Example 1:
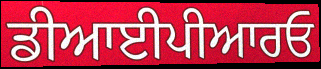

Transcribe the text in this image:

ਡੀਆਈਪੀਆਰਓ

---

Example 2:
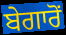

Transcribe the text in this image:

ਬੇਗਾਰੋਂ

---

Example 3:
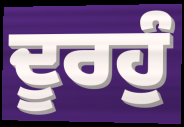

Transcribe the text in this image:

ਦੂਰਹੁੰ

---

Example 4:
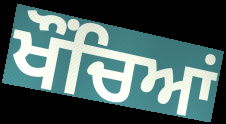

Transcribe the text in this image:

ਖੌਂਚਿਆਂ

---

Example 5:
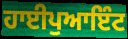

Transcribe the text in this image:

ਹਾਈਪੁਆਇੰਟ